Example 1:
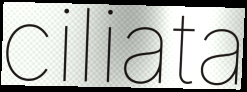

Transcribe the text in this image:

ciliata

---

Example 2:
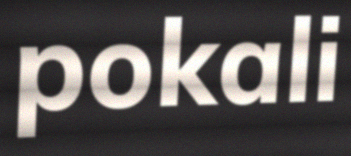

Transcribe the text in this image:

pokali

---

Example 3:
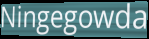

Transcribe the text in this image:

Ningegowda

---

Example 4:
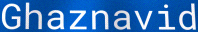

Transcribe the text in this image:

Ghaznavid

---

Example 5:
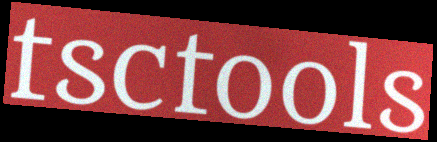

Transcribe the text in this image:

tsctools